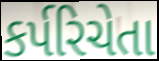
કર્પરિચેતા